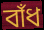
বাঁধ